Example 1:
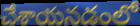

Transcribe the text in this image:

చేశాయనడంలో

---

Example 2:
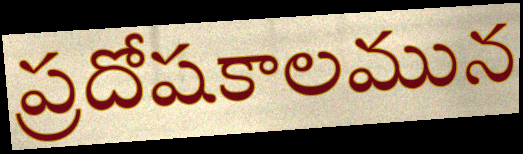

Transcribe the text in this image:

ప్రదోషకాలమున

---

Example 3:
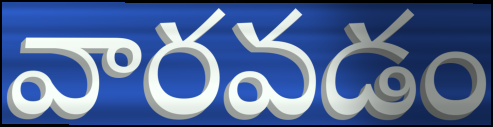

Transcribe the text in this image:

వారవడం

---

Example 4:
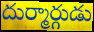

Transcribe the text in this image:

దుర్మార్గుడు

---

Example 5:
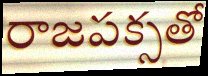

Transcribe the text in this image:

రాజపక్సతో